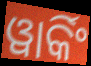
ୱାର୍କିଂ